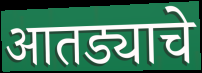
आतड्याचे